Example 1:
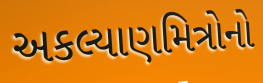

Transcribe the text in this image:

અકલ્યાણમિત્રોનો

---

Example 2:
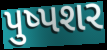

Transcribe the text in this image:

પુષ્પશર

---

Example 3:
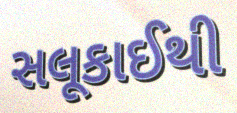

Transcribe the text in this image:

સલૂકાઈથી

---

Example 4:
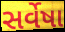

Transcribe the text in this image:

સર્વેષા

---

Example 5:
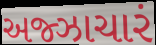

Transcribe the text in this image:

અજ્ઝાચારં